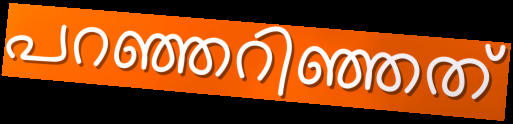
പറഞ്ഞറിഞ്ഞത്